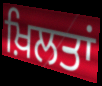
ਖ਼ਿਲਤਾਂ